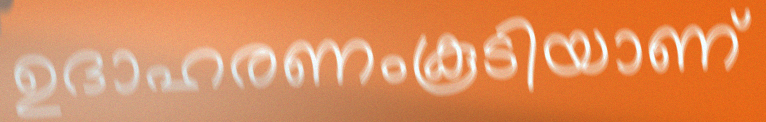
ഉദാഹരണംകൂടിയാണ്